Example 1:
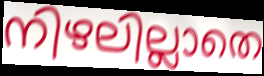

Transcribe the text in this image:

നിഴലില്ലാതെ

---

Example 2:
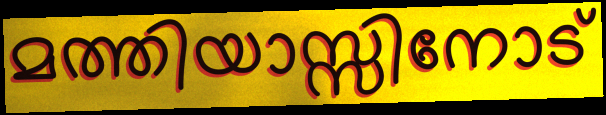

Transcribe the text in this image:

മത്തിയാസ്സിനോട്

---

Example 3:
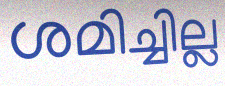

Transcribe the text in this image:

ശമിച്ചില്ല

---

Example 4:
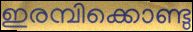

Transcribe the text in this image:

ഇരമ്പിക്കൊണ്ടു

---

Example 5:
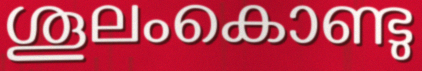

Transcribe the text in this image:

ശൂലംകൊണ്ടു